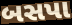
બસપા